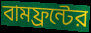
বামফ্রন্টের